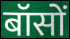
बॉसों